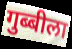
गुब्बीला